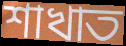
শাখাত